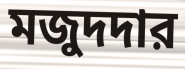
মজুদদার